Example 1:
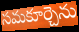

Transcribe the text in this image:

సమకూర్చెను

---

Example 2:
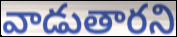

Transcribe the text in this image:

వాడుతారని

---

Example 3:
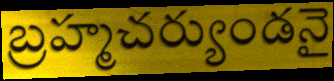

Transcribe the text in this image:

బ్రహ్మచర్యుండనై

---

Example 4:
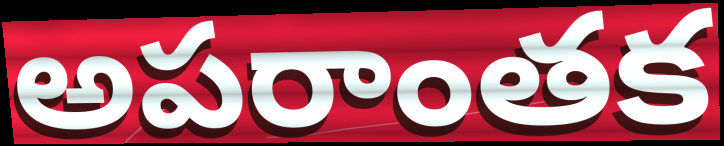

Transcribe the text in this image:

అపరాంతక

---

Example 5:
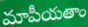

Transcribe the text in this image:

మాపీయతాం